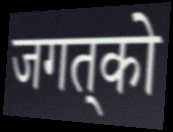
जगत्‌को